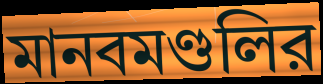
মানবমণ্ডলির